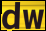
dw